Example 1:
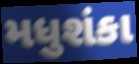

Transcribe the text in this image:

મધુશંકા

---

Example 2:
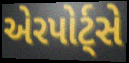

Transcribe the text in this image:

એરપોર્ટ્સે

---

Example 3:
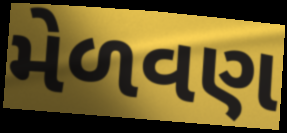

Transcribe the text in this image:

મેળવણ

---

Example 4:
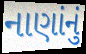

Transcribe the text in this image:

નાણાંનું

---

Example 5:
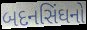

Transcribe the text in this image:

બદનસિંઘનો